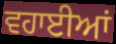
ਵਹਾਈਆਂ